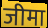
जीमा